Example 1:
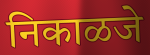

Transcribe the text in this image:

निकाळजे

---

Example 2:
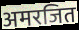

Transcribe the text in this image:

अमरजित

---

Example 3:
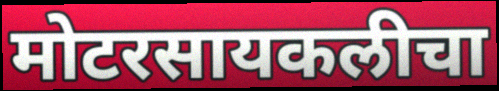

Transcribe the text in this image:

मोटरसायकलीचा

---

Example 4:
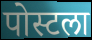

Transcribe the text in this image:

पोस्टला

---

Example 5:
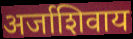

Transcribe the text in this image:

अर्जाशिवाय